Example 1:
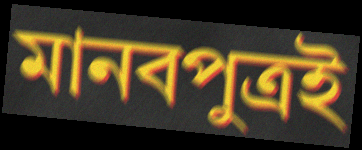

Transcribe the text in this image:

মানবপুত্রই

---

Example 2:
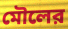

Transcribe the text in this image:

মৌলের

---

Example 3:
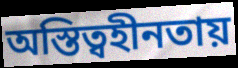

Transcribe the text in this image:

অস্তিত্বহীনতায়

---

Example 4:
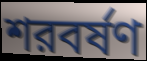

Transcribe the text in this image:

শরবর্ষণ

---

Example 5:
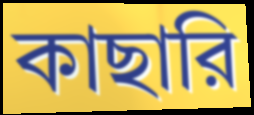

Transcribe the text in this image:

কাছারি